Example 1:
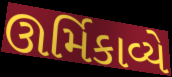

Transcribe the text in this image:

ઊર્મિકાવ્યે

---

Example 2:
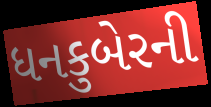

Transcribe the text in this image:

ધનકુબેરની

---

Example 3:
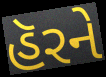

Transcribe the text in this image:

હૅરને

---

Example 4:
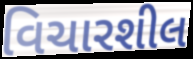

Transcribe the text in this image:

વિચારશીલ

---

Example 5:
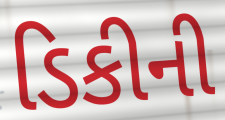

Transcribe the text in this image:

ડિકીની